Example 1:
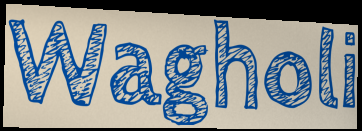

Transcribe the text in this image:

Wagholi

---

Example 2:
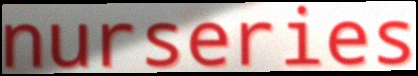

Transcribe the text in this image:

nurseries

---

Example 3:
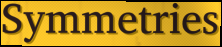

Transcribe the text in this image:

Symmetries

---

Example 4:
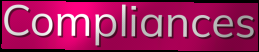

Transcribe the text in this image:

Compliances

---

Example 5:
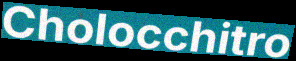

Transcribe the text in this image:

Cholocchitro